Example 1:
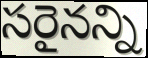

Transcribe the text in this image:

సరైనన్ని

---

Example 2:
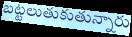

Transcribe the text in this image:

బట్టలుతుకుతున్నారు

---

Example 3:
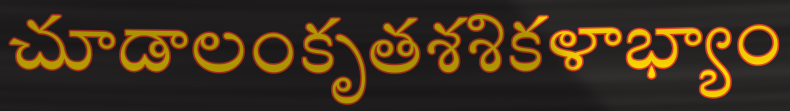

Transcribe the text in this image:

చూడాలంకృతశశికళాభ్యాం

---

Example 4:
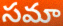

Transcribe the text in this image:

సమా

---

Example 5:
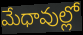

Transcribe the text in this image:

మేధావుల్లో